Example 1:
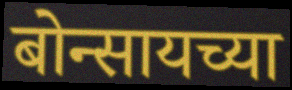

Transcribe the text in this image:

बोन्सायच्या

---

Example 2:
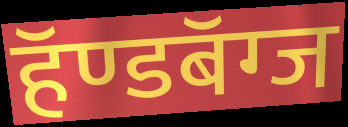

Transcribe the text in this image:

हॅण्डबॅग्ज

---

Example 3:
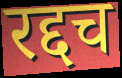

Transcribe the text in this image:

रद्दच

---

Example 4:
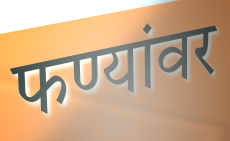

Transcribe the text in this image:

फण्यांवर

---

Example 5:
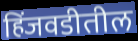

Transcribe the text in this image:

हिंजवडीतील